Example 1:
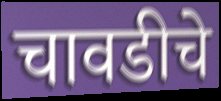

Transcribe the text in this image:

चावडीचे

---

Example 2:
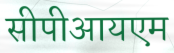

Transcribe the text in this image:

सीपीआयएम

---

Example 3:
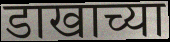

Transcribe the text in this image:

डाखाच्या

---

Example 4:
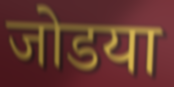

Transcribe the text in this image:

जोडया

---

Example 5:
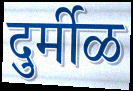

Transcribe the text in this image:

दुर्मीळ